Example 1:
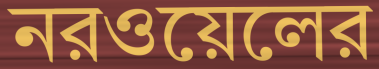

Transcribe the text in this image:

নরওয়েলের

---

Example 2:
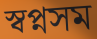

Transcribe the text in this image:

স্বপ্নসম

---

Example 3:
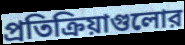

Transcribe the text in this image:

প্রতিক্রিয়াগুলোর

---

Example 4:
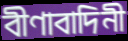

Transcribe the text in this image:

বীণাবাদিনী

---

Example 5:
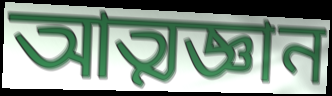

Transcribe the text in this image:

আত্মজ্ঞান